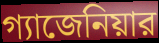
গ্যাজেনিয়ার